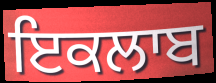
ਇਕਲਾਬ